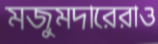
মজুমদারেরাও